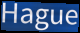
Hague